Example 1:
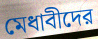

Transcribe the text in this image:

মেধাবীদের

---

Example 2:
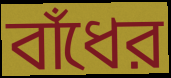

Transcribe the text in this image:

বাঁধের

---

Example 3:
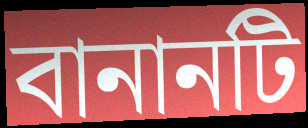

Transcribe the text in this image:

বানানটি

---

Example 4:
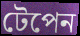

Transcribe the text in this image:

টেপেন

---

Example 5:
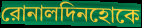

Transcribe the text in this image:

রোনালদিনহোকে